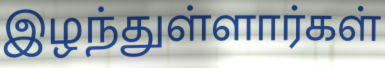
இழந்துள்ளார்கள்